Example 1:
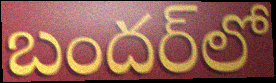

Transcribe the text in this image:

బందర్‌లో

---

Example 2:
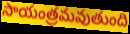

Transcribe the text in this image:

సాయంత్రమవుతుంది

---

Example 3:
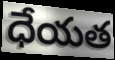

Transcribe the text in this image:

ధేయత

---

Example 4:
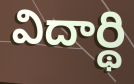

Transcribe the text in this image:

విదార్థి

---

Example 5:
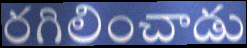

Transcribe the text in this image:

రగిలించాడు